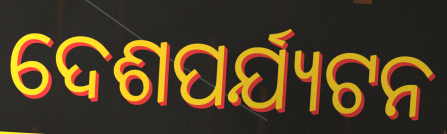
ଦେଶପର୍ଯ୍ୟଟନ